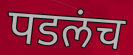
पडलंच